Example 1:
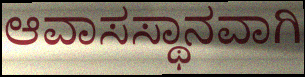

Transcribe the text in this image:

ಆವಾಸಸ್ಥಾನವಾಗಿ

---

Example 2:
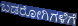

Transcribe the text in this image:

ಬಡರೋಗಿಗಳಿಗೆ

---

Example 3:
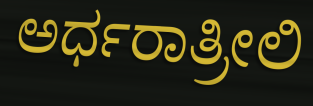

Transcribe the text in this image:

ಅರ್ಧರಾತ್ರೀಲಿ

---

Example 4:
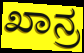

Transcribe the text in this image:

ಖಾನ್ರ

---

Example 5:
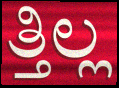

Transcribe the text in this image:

ತ್ತಿಲ್ಲ